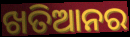
ଖତିଆନର